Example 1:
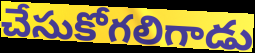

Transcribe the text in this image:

చేసుకోగలిగాడు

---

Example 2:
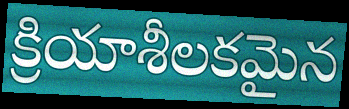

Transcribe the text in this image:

క్రియాశీలకమైన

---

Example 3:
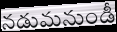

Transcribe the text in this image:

నడుమనుండీ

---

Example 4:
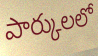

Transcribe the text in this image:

పార్కులలో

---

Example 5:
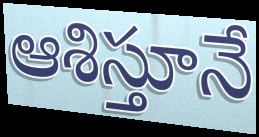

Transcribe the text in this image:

ఆశిస్తూనే